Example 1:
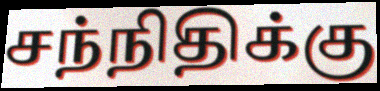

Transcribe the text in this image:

சந்நிதிக்கு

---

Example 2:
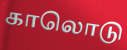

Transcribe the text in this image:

காலொடு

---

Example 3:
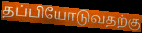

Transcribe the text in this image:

தப்பியோடுவதற்கு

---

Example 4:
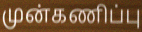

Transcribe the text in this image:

முன்கணிப்பு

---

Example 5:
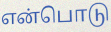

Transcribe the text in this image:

என்பொடு